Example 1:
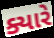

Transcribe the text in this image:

ક્યારે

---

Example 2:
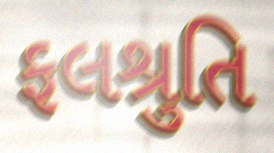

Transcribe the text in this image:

ફલશ્રુતિ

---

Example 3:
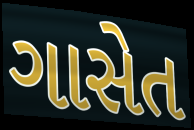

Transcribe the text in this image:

ગાસેત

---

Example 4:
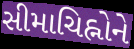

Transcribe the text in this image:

સીમાચિહ્નોને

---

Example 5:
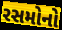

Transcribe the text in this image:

રસમોનો